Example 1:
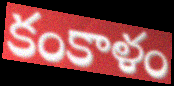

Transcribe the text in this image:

కంకాళం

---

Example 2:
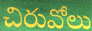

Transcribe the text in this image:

చిరువోలు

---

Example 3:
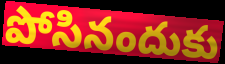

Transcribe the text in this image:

పోసినందుకు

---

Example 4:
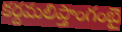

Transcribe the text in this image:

కర్దమలిప్తాంగంబై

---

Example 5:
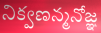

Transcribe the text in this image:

నిక్వణన్మనోజ్ఞ